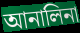
আনালিনা